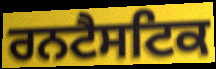
ਰਨਟੈਸਟਿਕ